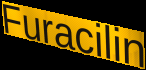
Furacilin